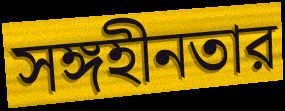
সঙ্গহীনতার